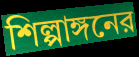
শিল্পাঙ্গনের